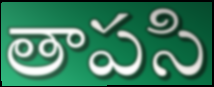
తాపసి